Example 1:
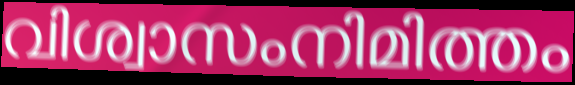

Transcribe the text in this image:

വിശ്വാസംനിമിത്തം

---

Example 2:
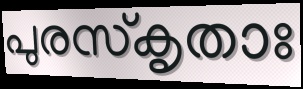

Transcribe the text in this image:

പുരസ്കൃതാഃ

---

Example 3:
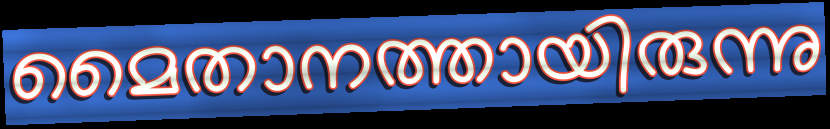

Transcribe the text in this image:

മൈതാനത്തായിരുന്നു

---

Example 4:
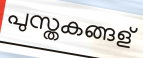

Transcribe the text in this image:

പുസ്തകങ്ങള്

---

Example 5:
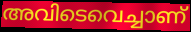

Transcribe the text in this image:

അവിടെവെച്ചാണ്